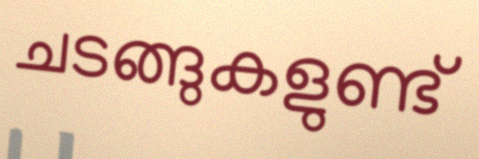
ചടങ്ങുകളുണ്ട്